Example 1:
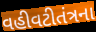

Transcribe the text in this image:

વહીવટીતંત્રના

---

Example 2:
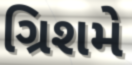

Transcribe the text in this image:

ગ્રિશમે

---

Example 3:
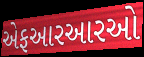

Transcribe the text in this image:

એફઆરઆરઓ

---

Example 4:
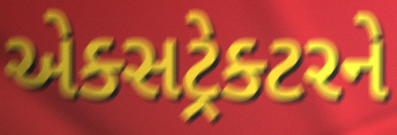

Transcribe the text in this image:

એક્સટ્રેક્ટરને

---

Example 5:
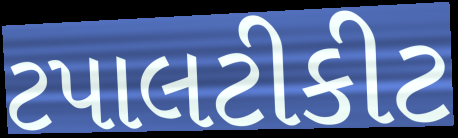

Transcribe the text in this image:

ટપાલટીકીટ